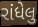
રાંધેલુ